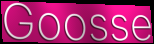
Goosse